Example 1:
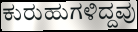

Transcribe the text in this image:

ಕುರುಹುಗಳಿದ್ದವು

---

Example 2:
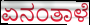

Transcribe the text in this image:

ಏನಂತಾಳೆ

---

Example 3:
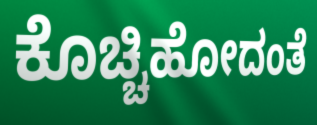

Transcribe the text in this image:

ಕೊಚ್ಚಿಹೋದಂತೆ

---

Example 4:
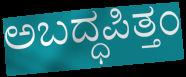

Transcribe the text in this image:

ಅಬದ್ಧಪಿತ್ತಂ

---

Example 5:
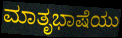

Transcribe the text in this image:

ಮಾತೃಭಾಷೆಯು